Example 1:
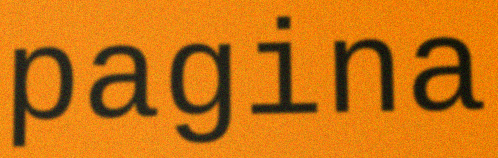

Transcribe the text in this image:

pagina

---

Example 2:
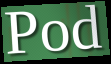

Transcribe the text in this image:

Pod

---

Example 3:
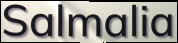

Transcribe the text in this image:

Salmalia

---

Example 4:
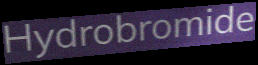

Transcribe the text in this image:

Hydrobromide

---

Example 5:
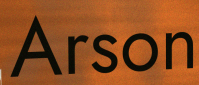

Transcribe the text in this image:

Arson